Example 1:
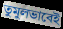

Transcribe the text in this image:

তুমুলভাবেই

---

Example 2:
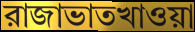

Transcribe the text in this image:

রাজাভাতখাওয়া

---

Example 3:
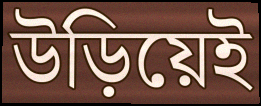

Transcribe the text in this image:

উড়িয়েই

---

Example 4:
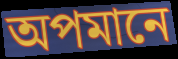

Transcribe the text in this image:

অপমানে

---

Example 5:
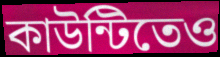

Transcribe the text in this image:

কাউন্টিতেও